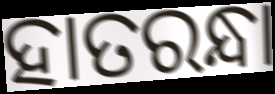
ହାତରନ୍ଧା